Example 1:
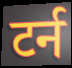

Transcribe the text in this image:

टर्न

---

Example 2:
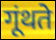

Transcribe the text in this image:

गूंथते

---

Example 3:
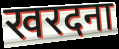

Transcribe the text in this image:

खरदना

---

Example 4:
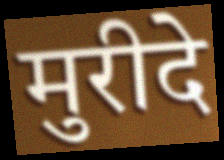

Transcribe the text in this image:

मुरीदे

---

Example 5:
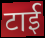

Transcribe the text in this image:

टाई